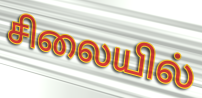
சிலையில்